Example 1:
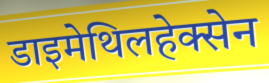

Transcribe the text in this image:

डाइमेथिलहेक्सेन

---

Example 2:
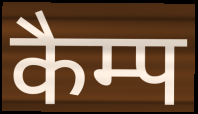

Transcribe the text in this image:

कैम्प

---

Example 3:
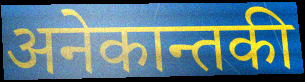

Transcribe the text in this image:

अनेकान्तकी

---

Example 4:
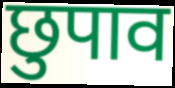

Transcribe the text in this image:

छुपाव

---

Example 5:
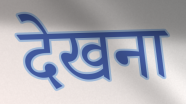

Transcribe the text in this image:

देखना